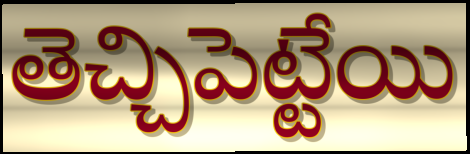
తెచ్చిపెట్టేయి